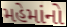
મહેમાંનો